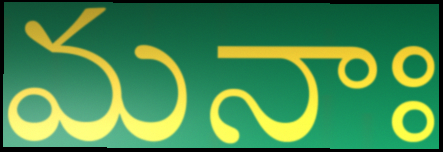
మనాః